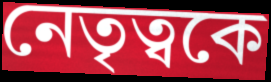
নেতৃত্বকে